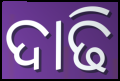
ଦାଢି